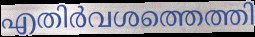
എതിർവശത്തെത്തി